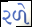
રળે